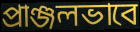
প্রাঞ্জলভাবে